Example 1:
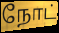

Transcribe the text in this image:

நோட்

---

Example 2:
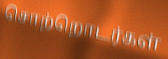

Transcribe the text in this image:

சொற்றொடர்கள்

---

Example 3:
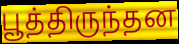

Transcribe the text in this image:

பூத்திருந்தன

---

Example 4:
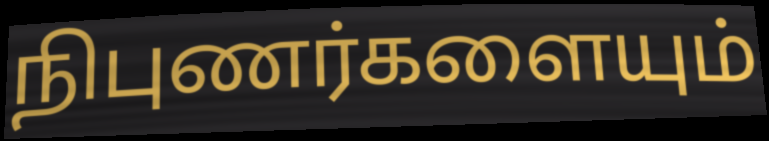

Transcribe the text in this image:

நிபுணர்களையும்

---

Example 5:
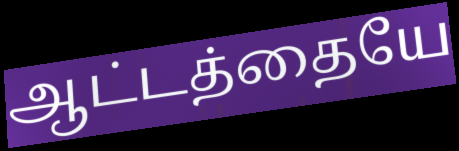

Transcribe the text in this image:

ஆட்டத்தையே